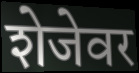
शेजेवर